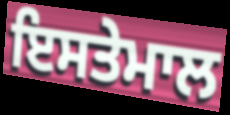
ਇਸਤੇਮਾਲ